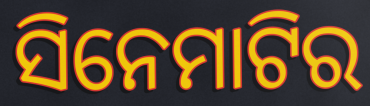
ସିନେମାଟିର